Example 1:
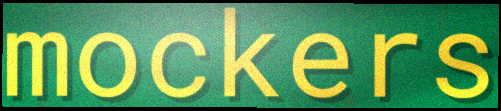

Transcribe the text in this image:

mockers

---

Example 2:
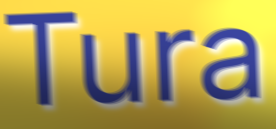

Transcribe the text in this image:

Tura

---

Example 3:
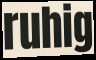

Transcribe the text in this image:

ruhig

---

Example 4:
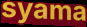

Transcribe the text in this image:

syama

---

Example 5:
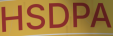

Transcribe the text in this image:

HSDPA